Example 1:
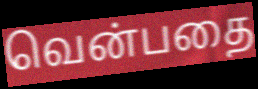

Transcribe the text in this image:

வென்பதை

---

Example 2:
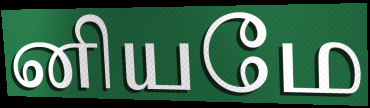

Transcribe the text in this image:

னியமே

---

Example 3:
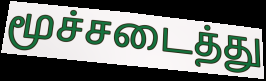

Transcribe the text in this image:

மூச்சடைத்து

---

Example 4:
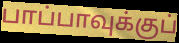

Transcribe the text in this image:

பாப்பாவுக்குப்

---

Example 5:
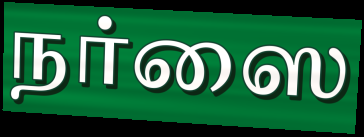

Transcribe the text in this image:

நர்ஸை